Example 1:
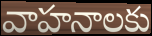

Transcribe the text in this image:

వాహనాలకు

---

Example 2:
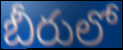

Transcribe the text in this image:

బీరులో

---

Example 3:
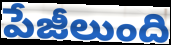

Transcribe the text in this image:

పేజీలుంది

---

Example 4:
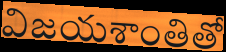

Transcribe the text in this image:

విజయశాంతితో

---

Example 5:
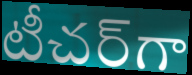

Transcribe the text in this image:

టీచర్‌గా